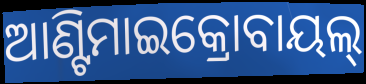
ଆଣ୍ଟିମାଇକ୍ରୋବାୟଲ୍